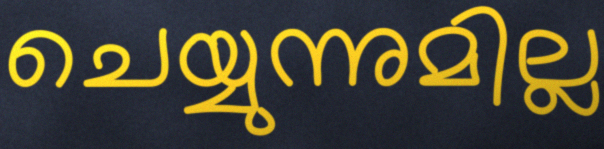
ചെയ്യുന്നുമില്ല